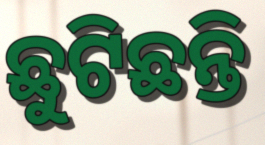
ଛୁଟିଛନ୍ତି